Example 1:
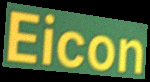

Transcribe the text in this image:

Eicon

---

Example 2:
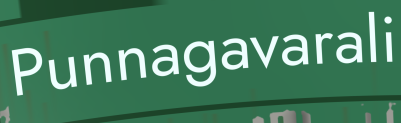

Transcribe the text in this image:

Punnagavarali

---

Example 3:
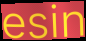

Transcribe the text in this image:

esin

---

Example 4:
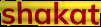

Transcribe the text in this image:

shakat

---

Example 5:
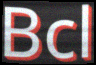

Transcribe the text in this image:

Bcl